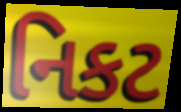
નિકટ